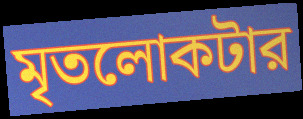
মৃতলোকটার